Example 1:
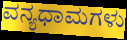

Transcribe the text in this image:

ವನ್ಯಧಾಮಗಳು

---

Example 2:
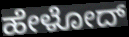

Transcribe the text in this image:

ಹೇಳೋದ್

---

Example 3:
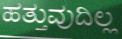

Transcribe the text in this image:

ಹತ್ತುವುದಿಲ್ಲ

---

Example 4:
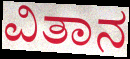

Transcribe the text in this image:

ವಿತಾನ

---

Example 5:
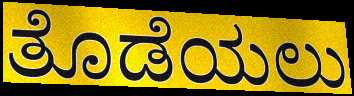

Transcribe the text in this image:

ತೊಡೆಯಲು